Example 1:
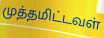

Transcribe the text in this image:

முத்தமிட்டவள்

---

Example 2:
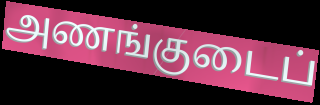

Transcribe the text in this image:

அணங்குடைப்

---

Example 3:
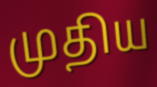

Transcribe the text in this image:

முதிய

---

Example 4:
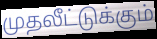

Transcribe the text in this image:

முதலீட்டுக்கும்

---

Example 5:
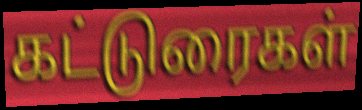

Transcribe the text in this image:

கட்டுரைகள்